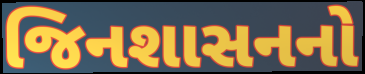
જિનશાસનનો